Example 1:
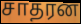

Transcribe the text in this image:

சாதரன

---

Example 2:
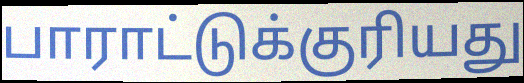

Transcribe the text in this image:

பாராட்டுக்குரியது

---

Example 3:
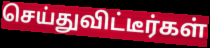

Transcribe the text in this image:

செய்துவிட்டீர்கள்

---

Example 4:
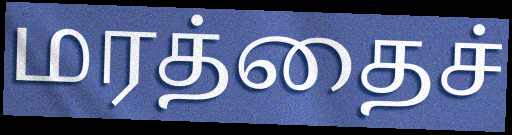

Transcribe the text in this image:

மரத்தைச்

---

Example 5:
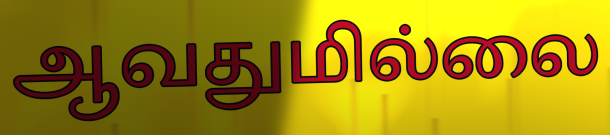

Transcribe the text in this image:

ஆவதுமில்லை